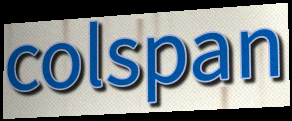
colspan